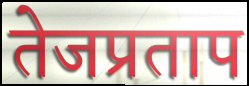
तेजप्रताप